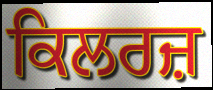
ਕਿਲਰਜ਼